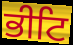
ਭੀਟਿ